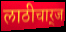
लाठीचार्ज